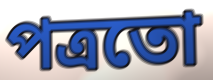
পত্ৰতো